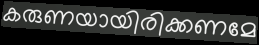
കരുണയായിരിക്കണമേ